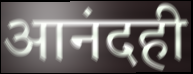
आनंदही